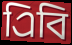
এিবি